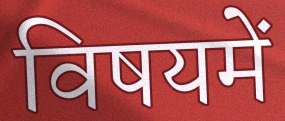
विषयमें